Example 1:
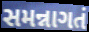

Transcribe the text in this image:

સમન્નાગતં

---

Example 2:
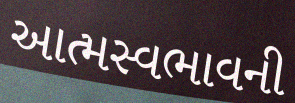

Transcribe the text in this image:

આત્મસ્વભાવની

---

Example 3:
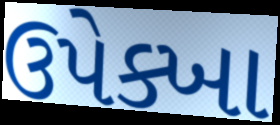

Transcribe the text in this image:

ઉપેક્ખા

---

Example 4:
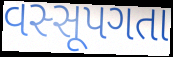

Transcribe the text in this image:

વસ્સૂપગતા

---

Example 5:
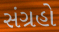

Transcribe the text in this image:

સંગ્રહો